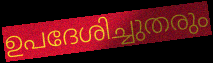
ഉപദേശിച്ചുതരും